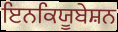
ਇਨਕਿਯੂਬੇਸ਼ਨ